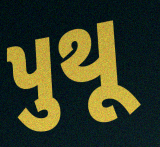
પુથૂ